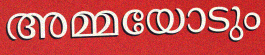
അമ്മയോടും